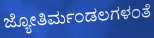
ಜ್ಯೋತಿರ್ಮಂಡಲಗಳಂತೆ